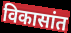
विकासांत